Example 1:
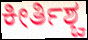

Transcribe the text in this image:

ಕೀರ್ತಿಶ್ಚ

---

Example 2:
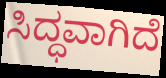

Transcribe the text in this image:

ಸಿದ್ಧವಾಗಿದೆ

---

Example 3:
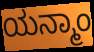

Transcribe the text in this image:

ಯನ್ಮಾಂ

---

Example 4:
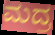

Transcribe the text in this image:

ಮದ್ರ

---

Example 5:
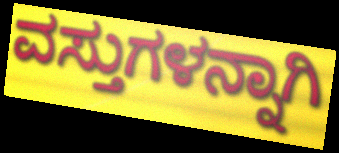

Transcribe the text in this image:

ವಸ್ತುಗಳನ್ನಾಗಿ